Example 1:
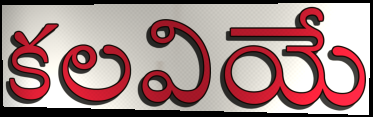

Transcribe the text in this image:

కలవియే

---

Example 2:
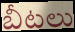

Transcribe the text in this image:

బీటలు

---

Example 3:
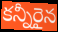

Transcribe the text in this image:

కన్నీరైన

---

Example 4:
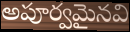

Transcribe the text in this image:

అపూర్వమైనవి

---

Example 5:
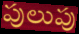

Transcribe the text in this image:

పులుపు